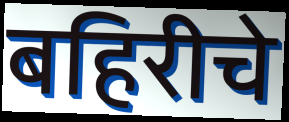
बहिरीचे